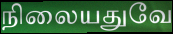
நிலையதுவே